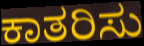
ಕಾತರಿಸು